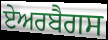
ਏਅਰਬੈਗਸ